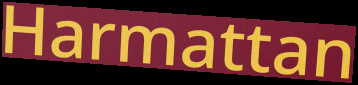
Harmattan